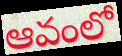
ఆవంలో